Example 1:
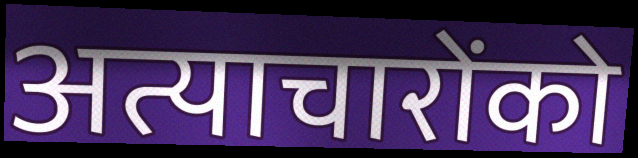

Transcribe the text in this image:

अत्याचारोंको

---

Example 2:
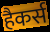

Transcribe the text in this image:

हैकर्स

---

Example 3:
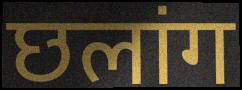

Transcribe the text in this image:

छलांग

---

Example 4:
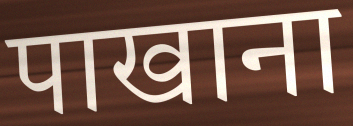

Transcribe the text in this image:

पाखाना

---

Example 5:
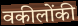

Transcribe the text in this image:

वकीलोंकी